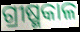
ଗ୍ରୀଷ୍ମକାଳ